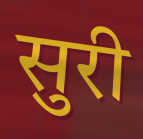
सुरी